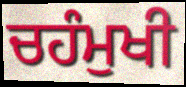
ਚਹੰਮੁਖੀ